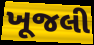
ખૂજલી